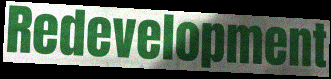
Redevelopment